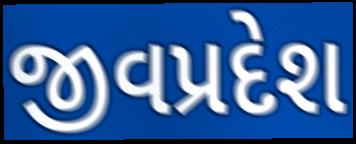
જીવપ્રદેશ